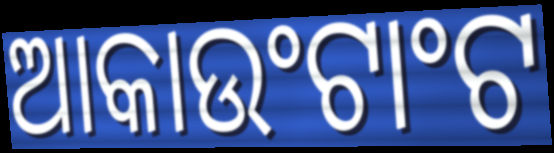
ଆକାଉଂଟାଂଟ